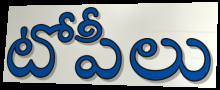
టోపీలు